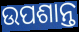
ଉପଶାନ୍ତ